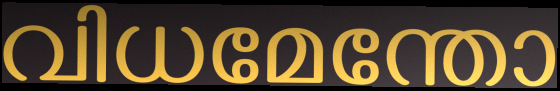
വിധമേന്തോ